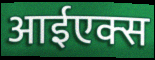
आईएक्स